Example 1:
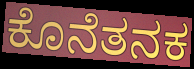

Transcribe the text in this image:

ಕೊನೆತನಕ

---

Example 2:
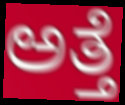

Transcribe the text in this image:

ಅತ್ತೆ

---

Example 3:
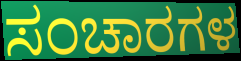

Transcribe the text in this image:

ಸಂಚಾರಗಳ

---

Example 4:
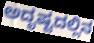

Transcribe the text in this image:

ಅದೃಷ್ಟದಲ್ಲಿನ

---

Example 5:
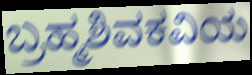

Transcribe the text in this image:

ಬ್ರಹ್ಮಶಿವಕವಿಯ